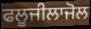
ਫਲੂਜੀਲਾਜੋਲ